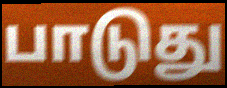
பாடுது